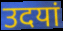
उदयां